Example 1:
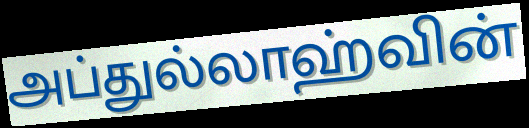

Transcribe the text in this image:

அப்துல்லாஹ்வின்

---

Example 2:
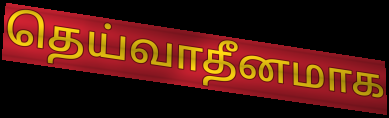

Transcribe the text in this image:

தெய்வாதீனமாக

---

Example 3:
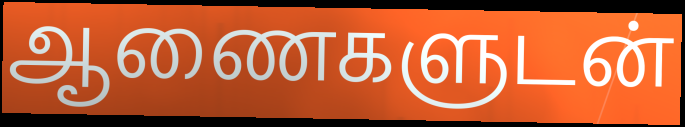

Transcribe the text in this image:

ஆணைகளுடன்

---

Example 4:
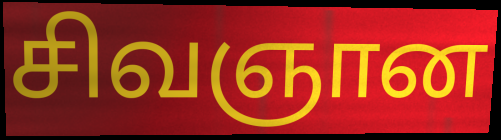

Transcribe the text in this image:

சிவஞான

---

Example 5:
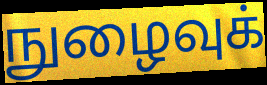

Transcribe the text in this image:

நுழைவுக்